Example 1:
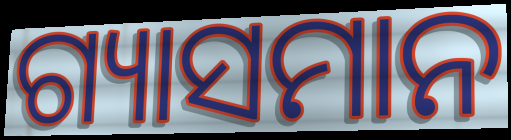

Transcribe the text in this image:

ଗ୍ୟାସମାନ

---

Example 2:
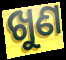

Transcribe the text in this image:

ଖୁଣ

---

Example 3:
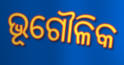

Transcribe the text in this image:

ଭୂଗୌଳିକ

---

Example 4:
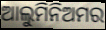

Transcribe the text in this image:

ଆଲୁମିନିଅମର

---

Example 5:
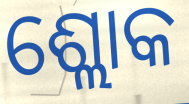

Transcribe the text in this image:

ଶ୍ଲୋକ